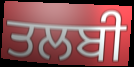
ਤਲਬੀ